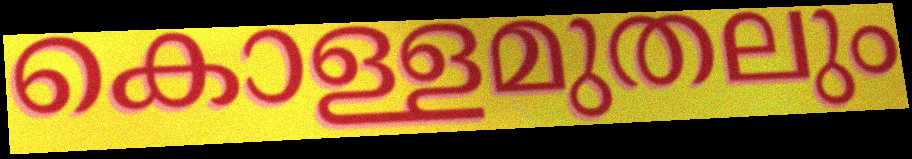
കൊള്ളമുതലും